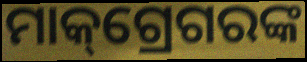
ମାକ୍‌ଗ୍ରେଗରଙ୍କ